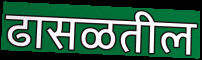
ढासळतील